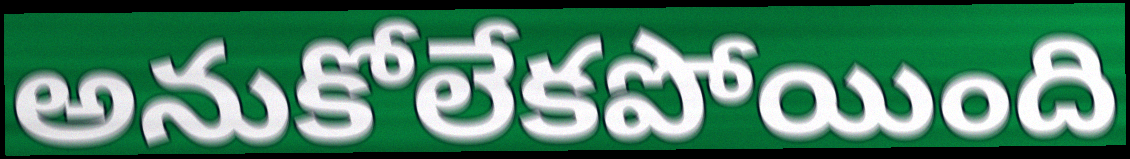
అనుకోలేకపోయింది